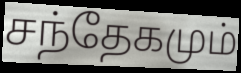
சந்தேகமும்